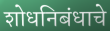
शोधनिबंधाचे